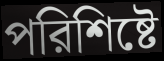
পরিশিষ্টে